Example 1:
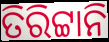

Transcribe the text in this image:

ତିରିଟ୍ଟାନି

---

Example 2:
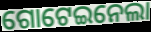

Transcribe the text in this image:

ଗୋଟେଇନେଲା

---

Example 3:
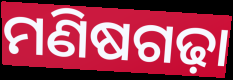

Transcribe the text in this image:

ମଣିଷଗଢ଼ା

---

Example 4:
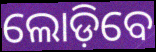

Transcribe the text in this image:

ଲୋଡ଼ିବେ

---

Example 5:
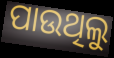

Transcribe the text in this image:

ପାଉଥିଲୁ